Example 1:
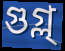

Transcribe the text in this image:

গুগ্ল্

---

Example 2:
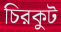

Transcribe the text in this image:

চিরকুট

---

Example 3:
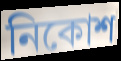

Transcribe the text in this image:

নিকোশ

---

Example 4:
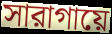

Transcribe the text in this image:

সারাগায়ে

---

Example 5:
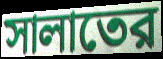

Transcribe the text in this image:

সালাতের